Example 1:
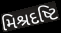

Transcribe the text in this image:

મિશ્રદષ્ટિ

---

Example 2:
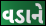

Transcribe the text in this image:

વડાને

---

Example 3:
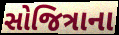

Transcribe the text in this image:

સોજિત્રાના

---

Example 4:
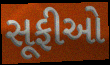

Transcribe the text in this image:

સૂફીઓ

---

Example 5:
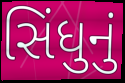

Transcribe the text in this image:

સિંધુનું